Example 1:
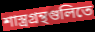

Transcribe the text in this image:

শাস্ত্রগ্রন্থগুলিতে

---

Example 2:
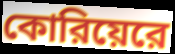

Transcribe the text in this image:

কোরিয়েরে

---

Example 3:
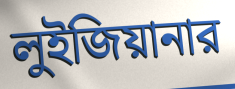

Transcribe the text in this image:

লুইজিয়ানার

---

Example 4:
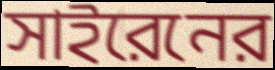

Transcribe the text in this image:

সাইরেনের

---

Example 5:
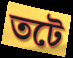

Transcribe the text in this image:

তটে